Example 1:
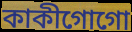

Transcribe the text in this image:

কাকীগোগো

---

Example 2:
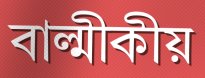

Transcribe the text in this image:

বাল্মীকীয়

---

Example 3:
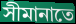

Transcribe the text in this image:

সীমানাতে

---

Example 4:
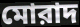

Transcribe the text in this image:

মোরাদ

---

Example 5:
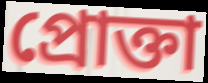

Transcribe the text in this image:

প্রোক্তা